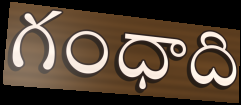
గంధాది